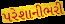
પરેશાનીભરી